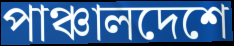
পাঞ্চালদেশে